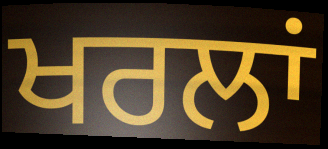
ਖਰਲਾਂ